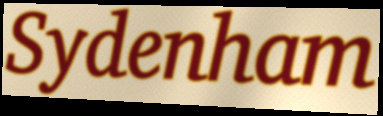
Sydenham